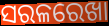
ସରଳରେଖା